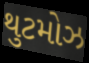
થુટમોઝ